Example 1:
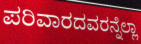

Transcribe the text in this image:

ಪರಿವಾರದವರನ್ನೆಲ್ಲಾ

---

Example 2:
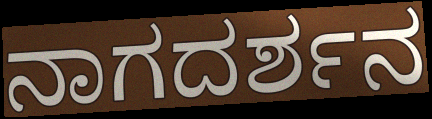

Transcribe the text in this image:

ನಾಗದರ್ಶನ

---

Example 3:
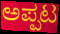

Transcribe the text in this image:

ಅಪ್ಪಟ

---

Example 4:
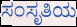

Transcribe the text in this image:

ಸಂಸೃತಿಯ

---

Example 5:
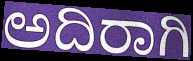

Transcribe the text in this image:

ಅದಿರಾಗಿ